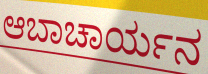
ಆಬಾಚಾರ್ಯನ